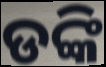
ଡଙ୍କି